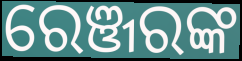
ରେଞ୍ଜରଙ୍କ